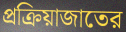
প্রক্রিয়াজাতের